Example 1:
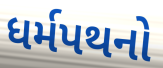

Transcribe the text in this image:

ધર્મપથનો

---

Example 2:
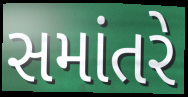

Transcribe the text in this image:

સમાંતરે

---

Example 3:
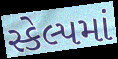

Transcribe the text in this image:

સ્કેલ્પમાં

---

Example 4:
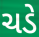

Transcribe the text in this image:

ચડે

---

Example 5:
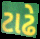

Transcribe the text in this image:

ટાઢે